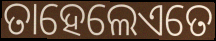
ତାହେଲେଏତେ